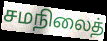
சமநிலைத்